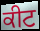
ਕੀਟ